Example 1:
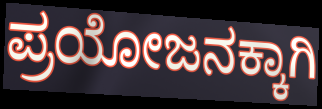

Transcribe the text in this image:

ಪ್ರಯೋಜನಕ್ಕಾಗಿ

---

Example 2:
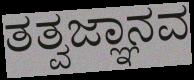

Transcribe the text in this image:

ತತ್ವಜ್ಞಾನವ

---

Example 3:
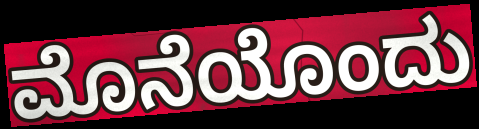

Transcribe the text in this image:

ಮೊನೆಯೊಂದು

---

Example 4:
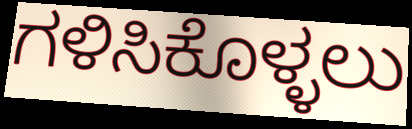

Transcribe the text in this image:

ಗಳಿಸಿಕೊಳ್ಳಲು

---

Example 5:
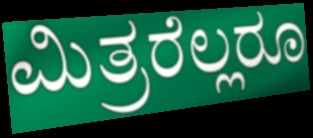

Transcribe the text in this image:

ಮಿತ್ರರೆಲ್ಲರೂ